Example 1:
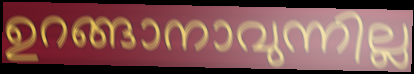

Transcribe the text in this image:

ഉറങ്ങാനാവുന്നില്ല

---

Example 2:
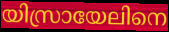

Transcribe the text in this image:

യിസ്രായേലിനെ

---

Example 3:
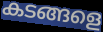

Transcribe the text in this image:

കടങ്ങളെ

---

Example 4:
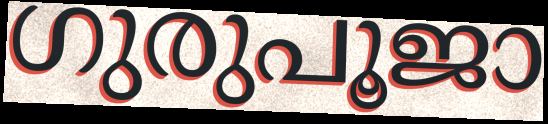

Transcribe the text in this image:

ഗുരുപൂജാ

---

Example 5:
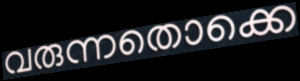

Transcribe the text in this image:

വരുന്നതൊക്കെ